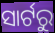
ସାର୍ଟରୁ